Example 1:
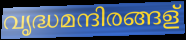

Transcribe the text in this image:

വൃദ്ധമന്ദിരങ്ങള്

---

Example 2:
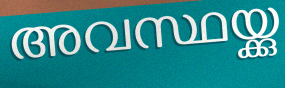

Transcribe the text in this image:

അവസ്ഥയ്ക്കു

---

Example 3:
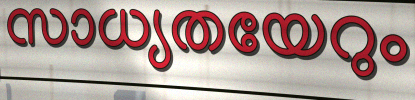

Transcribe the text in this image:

സാധ്യതയേറും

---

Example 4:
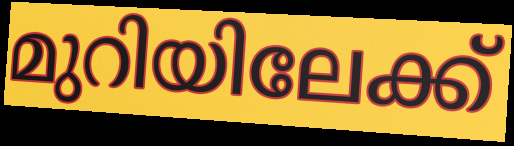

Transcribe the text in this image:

മുറിയിലേക്ക്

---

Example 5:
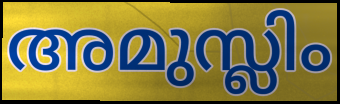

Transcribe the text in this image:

അമുസ്ലിം